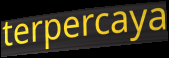
terpercaya